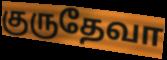
குருதேவா